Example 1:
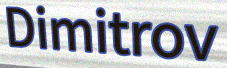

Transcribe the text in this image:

Dimitrov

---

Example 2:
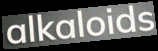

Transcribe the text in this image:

alkaloids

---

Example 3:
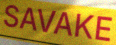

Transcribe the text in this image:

SAVAKE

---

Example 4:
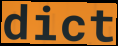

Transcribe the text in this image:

dict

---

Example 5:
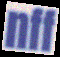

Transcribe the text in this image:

nff